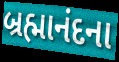
બ્રહ્માનંદના